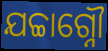
ଯଚ୍ଚାଗ୍ନୌ